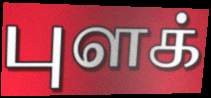
புளக்